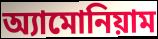
অ্যামোনিয়াম